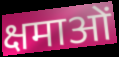
क्षमाओं